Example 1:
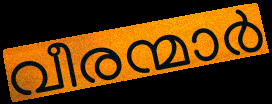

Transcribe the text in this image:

വീരന്മാർ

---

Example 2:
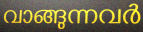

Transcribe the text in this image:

വാങ്ങുന്നവർ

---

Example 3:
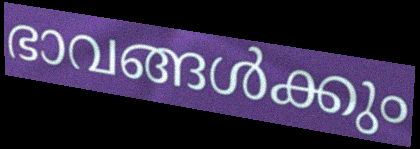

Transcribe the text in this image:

ഭാവങ്ങൾക്കും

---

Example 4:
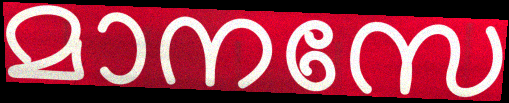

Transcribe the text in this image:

മാനസേ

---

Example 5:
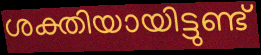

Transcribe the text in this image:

ശക്തിയായിട്ടുണ്ട്